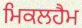
ਮਿਕਲਹੈਮ